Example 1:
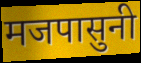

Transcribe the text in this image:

मजपासुनी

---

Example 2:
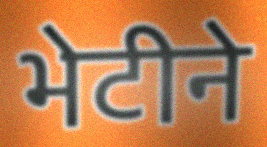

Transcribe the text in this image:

भेटीने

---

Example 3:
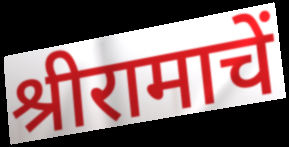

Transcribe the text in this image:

श्रीरामाचें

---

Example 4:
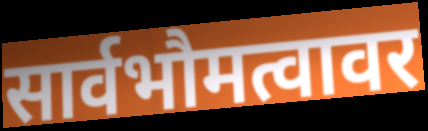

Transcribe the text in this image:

सार्वभौमत्वावर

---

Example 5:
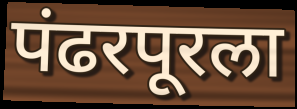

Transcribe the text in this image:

पंढरपूरला